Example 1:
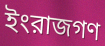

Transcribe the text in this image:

ইংরাজগণ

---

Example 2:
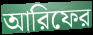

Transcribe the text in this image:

আরিফের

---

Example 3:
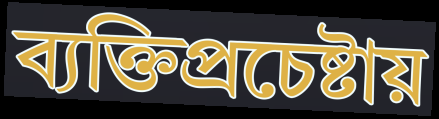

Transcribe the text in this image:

ব্যক্তিপ্রচেষ্টায়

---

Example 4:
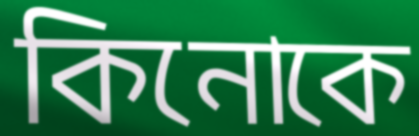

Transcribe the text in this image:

কিনোকে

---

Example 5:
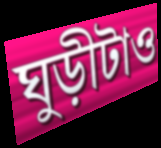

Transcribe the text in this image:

ঘুড়ীটাও